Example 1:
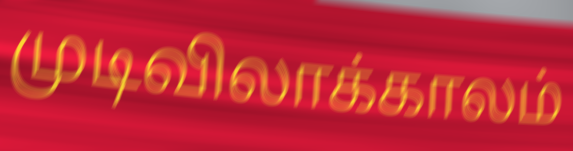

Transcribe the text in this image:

முடிவிலாக்காலம்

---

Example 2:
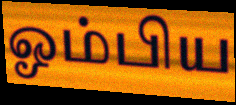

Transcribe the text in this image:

ஓம்பிய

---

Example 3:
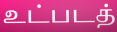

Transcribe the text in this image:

உட்படத்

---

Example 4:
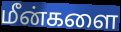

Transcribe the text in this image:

மீன்களை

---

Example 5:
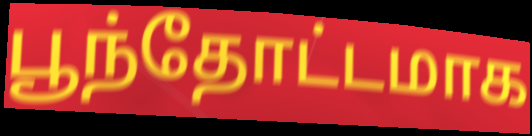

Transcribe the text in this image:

பூந்தோட்டமாக